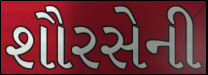
શૌરસેની